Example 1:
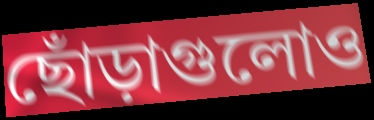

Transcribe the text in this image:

ছোঁড়াগুলোও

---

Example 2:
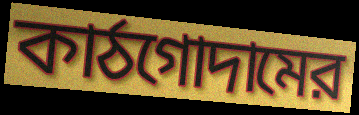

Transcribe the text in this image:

কাঠগোদামের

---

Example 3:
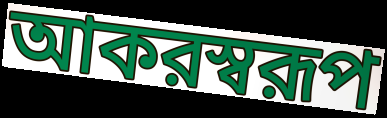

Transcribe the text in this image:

আকরস্বরূপ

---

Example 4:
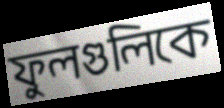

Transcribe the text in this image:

ফুলগুলিকে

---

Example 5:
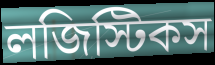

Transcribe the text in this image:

লজিস্টিকস